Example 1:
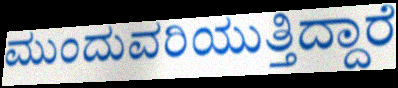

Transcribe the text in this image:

ಮುಂದುವರಿಯುತ್ತಿದ್ದಾರೆ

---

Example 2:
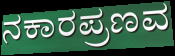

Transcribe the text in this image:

ನಕಾರಪ್ರಣವ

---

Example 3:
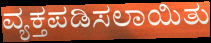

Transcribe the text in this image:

ವ್ಯಕ್ತಪಡಿಸಲಾಯಿತು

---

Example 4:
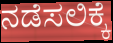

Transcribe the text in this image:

ನಡೆಸಲಿಕ್ಕೆ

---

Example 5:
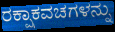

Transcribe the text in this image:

ರಕ್ಷಾಕವಚಗಳನ್ನು